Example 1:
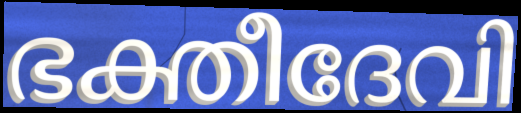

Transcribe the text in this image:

ഭക്തീദേവി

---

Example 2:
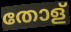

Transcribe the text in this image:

തോള്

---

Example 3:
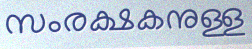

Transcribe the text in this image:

സംരക്ഷകനുള്ള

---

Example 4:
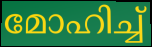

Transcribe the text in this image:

മോഹിച്ച്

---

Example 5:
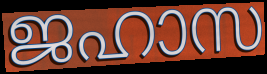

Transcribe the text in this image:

ജഹാസ